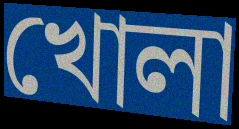
খোলা